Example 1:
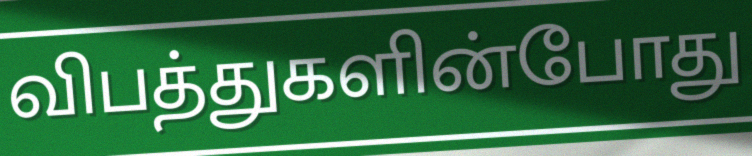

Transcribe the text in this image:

விபத்துகளின்போது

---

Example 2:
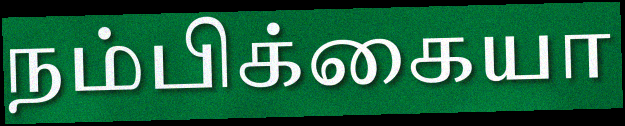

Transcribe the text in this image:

நம்பிக்கையா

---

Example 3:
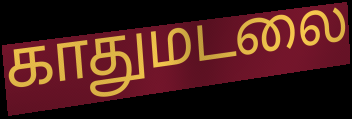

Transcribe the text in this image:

காதுமடலை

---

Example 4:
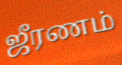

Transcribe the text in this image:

ஜீரணம்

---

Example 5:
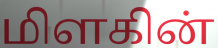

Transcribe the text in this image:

மிளகின்